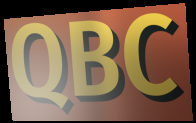
QBC